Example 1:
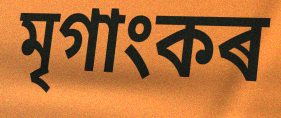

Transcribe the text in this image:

মৃগাংকৰ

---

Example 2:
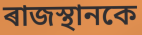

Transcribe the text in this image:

ৰাজস্থানকে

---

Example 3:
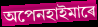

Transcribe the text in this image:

অপেনহাইমাৰে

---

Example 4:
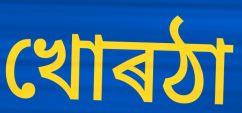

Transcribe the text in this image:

খোৰঠা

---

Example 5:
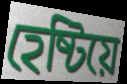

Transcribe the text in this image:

হেষ্টিয়ে